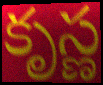
కృస్ణ